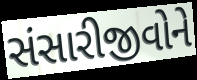
સંસારીજીવોને